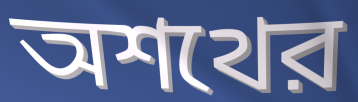
অশথের